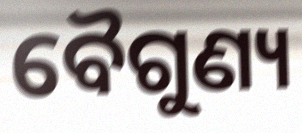
ବୈଗୁଣ୍ୟ